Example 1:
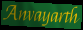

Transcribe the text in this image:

Anvayarth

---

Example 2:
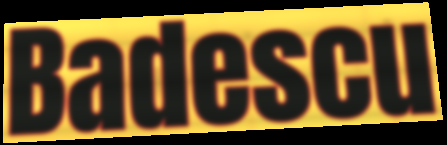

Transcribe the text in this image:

Badescu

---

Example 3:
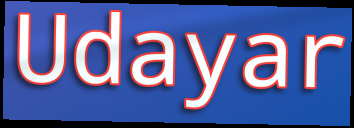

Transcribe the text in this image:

Udayar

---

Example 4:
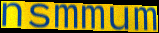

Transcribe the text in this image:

nsmmum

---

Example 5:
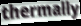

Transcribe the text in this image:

thermally